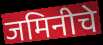
जमिनीचे